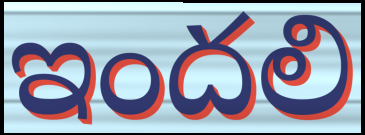
ఇందలి